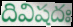
దివిషదః